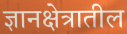
ज्ञानक्षेत्रातील